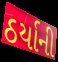
ઠર્યાની